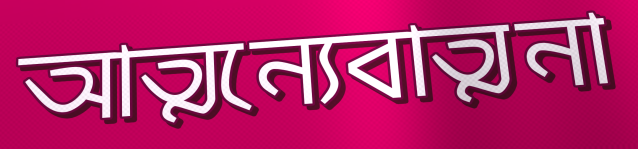
আত্মন্যেবাত্মনা